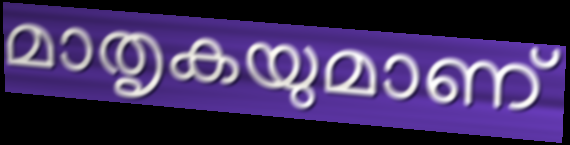
മാതൃകയുമാണ്